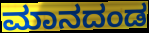
ಮಾನದಂಡ